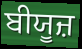
ਬੀਯੂਜ਼